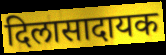
दिलासादायक